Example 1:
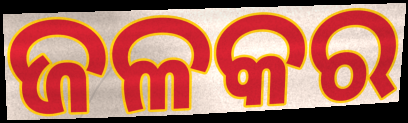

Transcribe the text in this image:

ଜଳକର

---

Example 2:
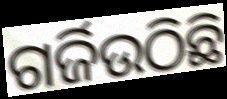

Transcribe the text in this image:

ଗର୍ଜିଉଠିଛି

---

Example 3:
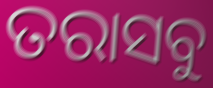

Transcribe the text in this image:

ତରାସବୁ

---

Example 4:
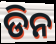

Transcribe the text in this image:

ଡିନ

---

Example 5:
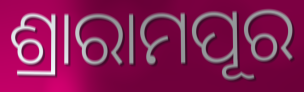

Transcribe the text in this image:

ଶ୍ରାରାମପୂର